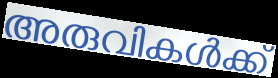
അരുവികൾക്ക്